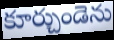
కూర్చుండెను